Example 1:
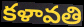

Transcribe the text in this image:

కళావతి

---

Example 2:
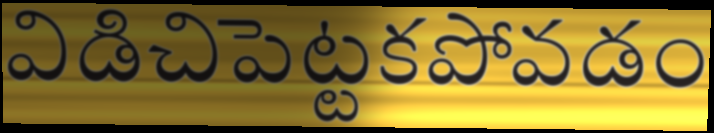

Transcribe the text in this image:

విడిచిపెట్టకపోవడం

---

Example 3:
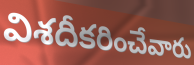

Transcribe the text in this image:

విశదీకరించేవారు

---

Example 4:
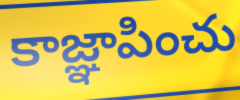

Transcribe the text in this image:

కాజ్ఞాపించు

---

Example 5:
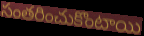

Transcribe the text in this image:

సంతరించుకొంటాయి